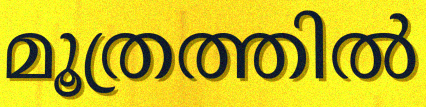
മൂത്രത്തിൽ